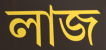
লাজ